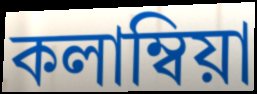
কলাম্বিয়া